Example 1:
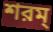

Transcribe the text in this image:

শরম্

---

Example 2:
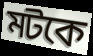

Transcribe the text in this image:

মটকে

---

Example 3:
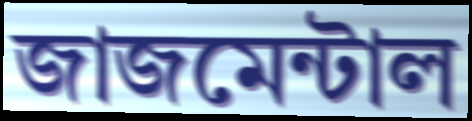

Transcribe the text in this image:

জাজমেন্টাল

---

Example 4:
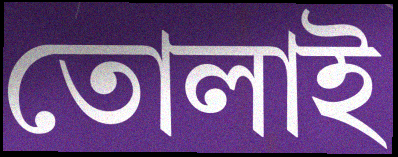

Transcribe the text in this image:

তোলাই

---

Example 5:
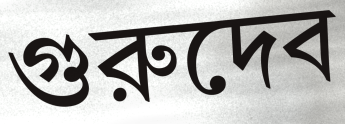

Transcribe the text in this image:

গুরুদেব